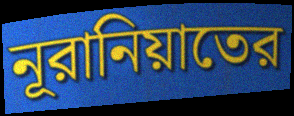
নূরানিয়াতের